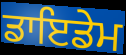
ਡਾਇਡੇਮ